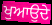
ਖੁਆਉਦੇ